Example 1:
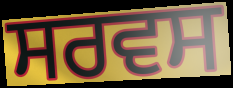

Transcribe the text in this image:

ਸਰਵਸ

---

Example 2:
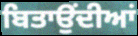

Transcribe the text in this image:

ਬਿਤਾਉਂਦੀਆਂ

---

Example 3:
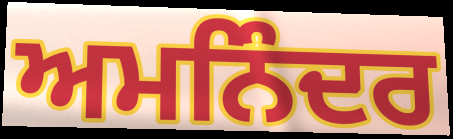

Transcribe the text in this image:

ਅਮਨਿੰਦਰ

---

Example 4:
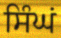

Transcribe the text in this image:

ਸਿੰਘਂ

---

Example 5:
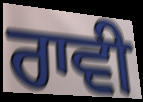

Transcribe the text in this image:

ਰਾਵੀ